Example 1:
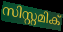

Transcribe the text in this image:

സിസ്റ്റമിക്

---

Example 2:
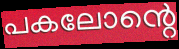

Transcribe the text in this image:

പകലോന്റെ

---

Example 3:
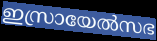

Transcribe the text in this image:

ഇസ്രായേൽസഭ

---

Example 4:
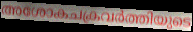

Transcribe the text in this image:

അശോകചക്രവർത്തിയുടെ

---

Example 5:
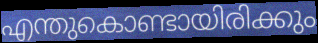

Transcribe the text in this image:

എന്തുകൊണ്ടായിരിക്കും